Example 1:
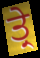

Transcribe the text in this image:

ਤ੍ਰੇ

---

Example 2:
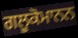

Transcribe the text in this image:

ਗਲੂਕੋਮਾਨਨ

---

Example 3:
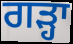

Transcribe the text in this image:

ਗੜ੍ਹਾ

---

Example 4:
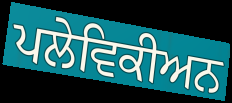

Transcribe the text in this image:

ਪਲੇਵਿਕੀਅਨ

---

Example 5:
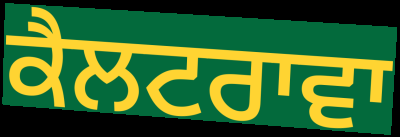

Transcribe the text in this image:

ਕੈਲਟਰਾਵਾ